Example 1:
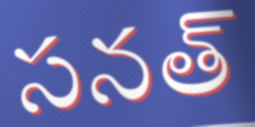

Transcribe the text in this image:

సనత్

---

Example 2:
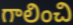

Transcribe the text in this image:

గాలించి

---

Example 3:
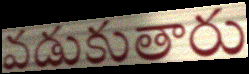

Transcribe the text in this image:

వడుకుతారు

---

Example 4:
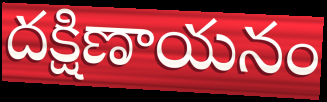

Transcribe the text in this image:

దక్షిణాయనం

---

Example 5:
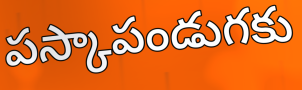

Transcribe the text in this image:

పస్కాపండుగకు